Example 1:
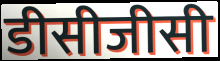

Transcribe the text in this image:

डीसीजीसी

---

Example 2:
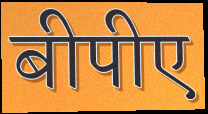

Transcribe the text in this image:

बीपीए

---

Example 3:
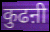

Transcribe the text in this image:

कुढऩी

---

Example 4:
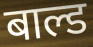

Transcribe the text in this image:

बाल्ड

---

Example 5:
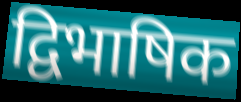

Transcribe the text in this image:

द्विभाषिक